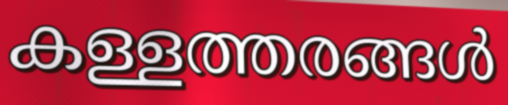
കള്ളത്തരങ്ങൾ